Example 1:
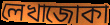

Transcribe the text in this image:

লেখাজোকা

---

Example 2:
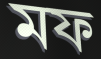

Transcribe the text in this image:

মফ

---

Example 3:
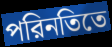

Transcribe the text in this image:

পরিনতিতে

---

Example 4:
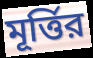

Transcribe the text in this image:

মূর্ত্তির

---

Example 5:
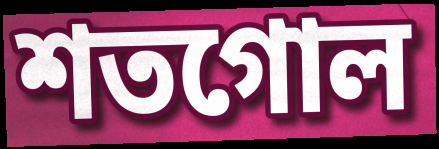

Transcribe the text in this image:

শতগোল